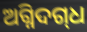
ଅଗ୍ନିଦଗ୍‌ଧ